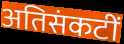
अतिसंकटीं